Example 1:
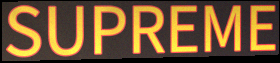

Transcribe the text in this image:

SUPREME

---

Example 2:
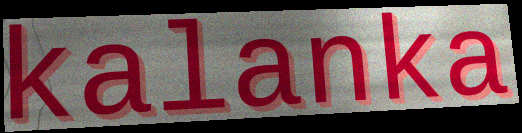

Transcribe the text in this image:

kalanka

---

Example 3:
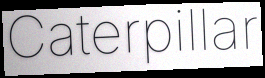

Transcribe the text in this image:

Caterpillar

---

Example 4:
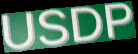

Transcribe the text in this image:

USDP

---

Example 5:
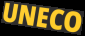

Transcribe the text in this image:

UNECO